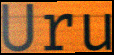
Uru